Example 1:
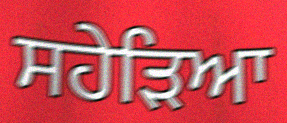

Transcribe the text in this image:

ਸਹੇੜਿਆ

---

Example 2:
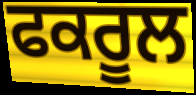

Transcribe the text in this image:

ਫਕਰੂਲ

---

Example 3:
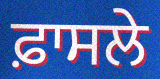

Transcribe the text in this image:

ਫ਼ਾਸਲੇ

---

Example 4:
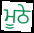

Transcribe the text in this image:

ਮੂਠੇ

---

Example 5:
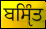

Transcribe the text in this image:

ਬਸੵਿੰਤ